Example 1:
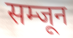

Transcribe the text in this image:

सम्जून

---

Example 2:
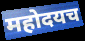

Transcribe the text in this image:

महोदयच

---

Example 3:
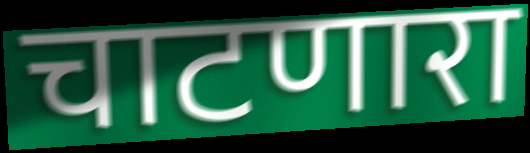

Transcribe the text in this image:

चाटणारा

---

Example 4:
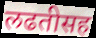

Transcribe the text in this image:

लढतीसह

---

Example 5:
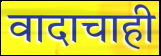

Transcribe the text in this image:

वादाचाही